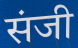
संजी